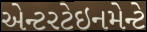
એન્ટરટેઇનમેન્ટે